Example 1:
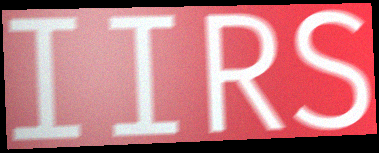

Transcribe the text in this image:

IIRS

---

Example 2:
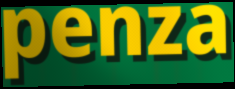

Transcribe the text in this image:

penza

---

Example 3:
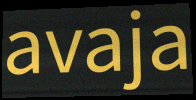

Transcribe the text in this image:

avaja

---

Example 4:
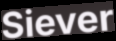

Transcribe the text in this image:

Siever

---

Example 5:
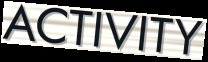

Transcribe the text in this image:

ACTIVITY